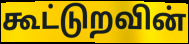
கூட்டுறவின்